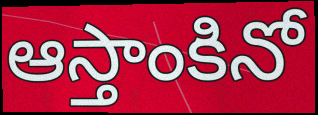
ఆస్తాంకినో